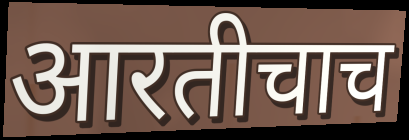
आरतीचाच